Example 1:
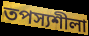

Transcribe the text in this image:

তপস্যশীলা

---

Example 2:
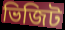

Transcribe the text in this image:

ভিজিট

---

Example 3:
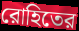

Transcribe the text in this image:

রোহিতের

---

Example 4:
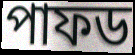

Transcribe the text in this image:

পাফড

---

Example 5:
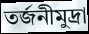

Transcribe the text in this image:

তর্জনীমুদ্রা